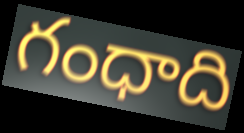
గంధాది